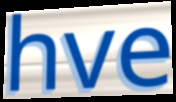
hve